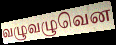
வழுவழுவென